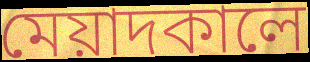
মেয়াদকালে